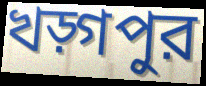
খড়্গপুর